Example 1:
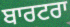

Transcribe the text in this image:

ਬਾਰਟਰਾ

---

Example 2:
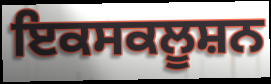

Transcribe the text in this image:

ਇਕਸਕਲੂਸ਼ਨ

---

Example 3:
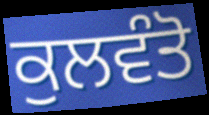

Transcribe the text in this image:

ਕੁਲਵੰਤੋ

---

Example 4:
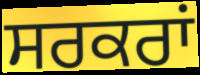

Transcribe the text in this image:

ਸਰਕਰਾਂ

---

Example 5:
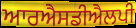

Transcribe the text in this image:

ਆਰਐਸਡੀਐਲਪੀ